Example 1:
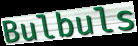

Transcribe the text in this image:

Bulbuls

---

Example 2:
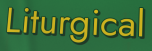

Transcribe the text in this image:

Liturgical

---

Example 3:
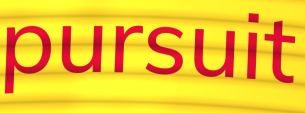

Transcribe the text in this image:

pursuit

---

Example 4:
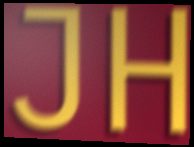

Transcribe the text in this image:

JH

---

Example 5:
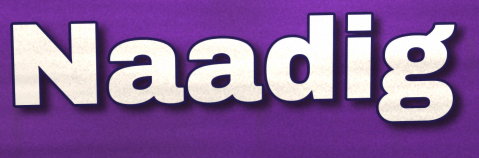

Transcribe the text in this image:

Naadig